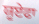
ਯੂਏਫਾ